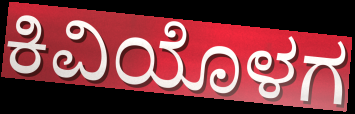
ಕಿವಿಯೊಳಗ